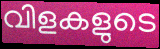
വിളകളുടെ